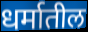
धर्मातील